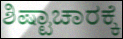
ಶಿಷ್ಟಾಚಾರಕ್ಕೆ